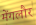
मेंगलौर